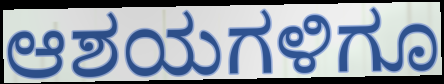
ಆಶಯಗಳಿಗೂ